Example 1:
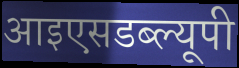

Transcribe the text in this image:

आइएसडब्ल्यूपी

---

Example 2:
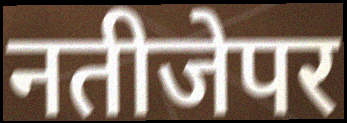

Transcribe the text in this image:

नतीजेपर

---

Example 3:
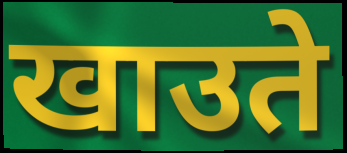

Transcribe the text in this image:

खाउते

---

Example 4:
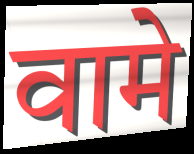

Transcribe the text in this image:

वामे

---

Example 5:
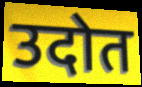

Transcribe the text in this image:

उदोत